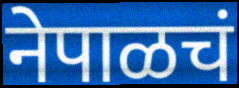
नेपाळचं